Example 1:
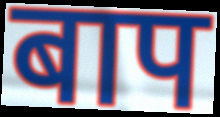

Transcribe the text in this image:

बाप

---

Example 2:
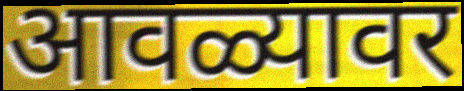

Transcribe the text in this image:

आवळ्यावर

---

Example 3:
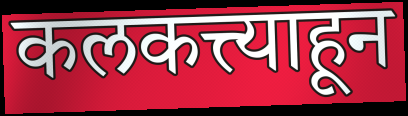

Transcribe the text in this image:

कलकत्त्याहून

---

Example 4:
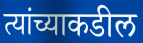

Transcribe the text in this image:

त्यांच्याकडील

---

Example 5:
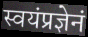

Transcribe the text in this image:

स्वयंप्रज्ञेनं